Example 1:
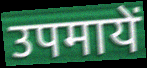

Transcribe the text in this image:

उपमायें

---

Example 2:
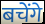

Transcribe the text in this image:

बचेंगे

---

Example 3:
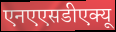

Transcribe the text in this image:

एनएएसडीएक्यू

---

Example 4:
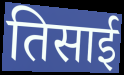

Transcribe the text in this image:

तिसाई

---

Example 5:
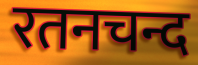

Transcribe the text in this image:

रतनचन्द